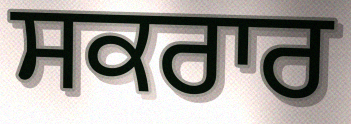
ਸਕਰਾਰ